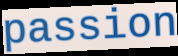
passion